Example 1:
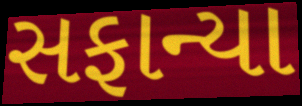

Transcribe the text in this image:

સફાન્યા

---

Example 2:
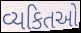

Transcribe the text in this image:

વ્યકિતઓ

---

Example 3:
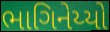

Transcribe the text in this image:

ભાગિનેય્યો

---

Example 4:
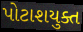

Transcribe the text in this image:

પોટાશયુક્ત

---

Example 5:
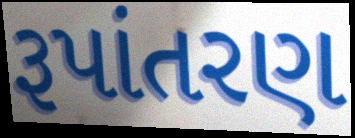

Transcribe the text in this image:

રૂપાંતરણ